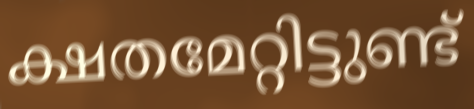
ക്ഷതമേറ്റിട്ടുണ്ട്